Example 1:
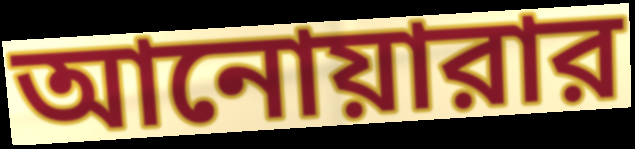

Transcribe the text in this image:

আনোয়ারার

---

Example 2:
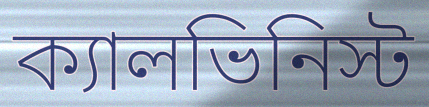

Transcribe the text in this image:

ক্যালভিনিস্ট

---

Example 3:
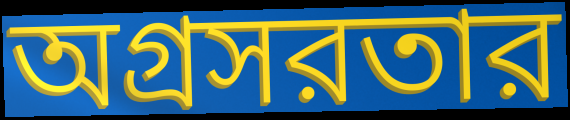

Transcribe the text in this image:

অগ্রসরতার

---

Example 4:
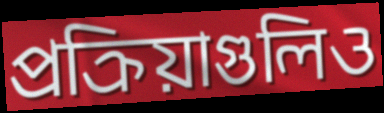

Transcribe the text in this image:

প্রক্রিয়াগুলিও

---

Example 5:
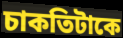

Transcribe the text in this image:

চাকতিটাকে